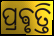
ପ୍ରଵୃତ୍ତି